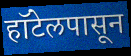
हॉटेलपासून